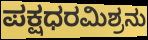
ಪಕ್ಷಧರಮಿಶ್ರನು